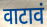
वाटावं